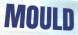
MOULD